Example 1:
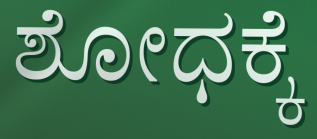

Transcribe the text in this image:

ಶೋಧಕ್ಕೆ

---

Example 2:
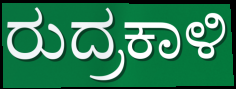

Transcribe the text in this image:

ರುದ್ರಕಾಳಿ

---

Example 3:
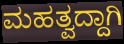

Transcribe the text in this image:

ಮಹತ್ವದ್ದಾಗಿ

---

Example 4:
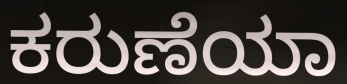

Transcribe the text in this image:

ಕರುಣೆಯಾ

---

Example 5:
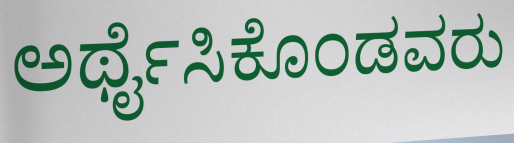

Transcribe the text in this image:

ಅರ್ಥೈಸಿಕೊಂಡವರು